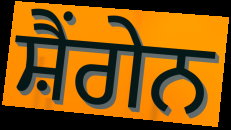
ਸ਼ੈਂਗੇਨ